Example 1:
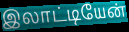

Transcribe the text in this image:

இலாட்டியேன்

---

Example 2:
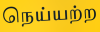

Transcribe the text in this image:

நெய்யற்ற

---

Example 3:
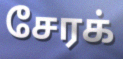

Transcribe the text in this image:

சேரக்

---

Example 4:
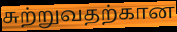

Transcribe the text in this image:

சுற்றுவதற்கான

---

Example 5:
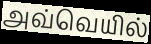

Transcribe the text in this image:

அவ்வெயில்